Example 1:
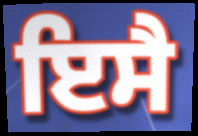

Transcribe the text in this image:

ਇਸੈ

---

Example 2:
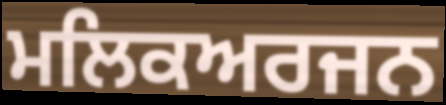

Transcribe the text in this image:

ਮਲਿਕਅਰਜਨ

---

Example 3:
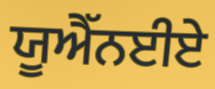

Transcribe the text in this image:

ਯੂਐੱਨਈਏ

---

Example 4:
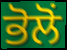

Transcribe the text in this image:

ਭੋਲੋਂ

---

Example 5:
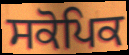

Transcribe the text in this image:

ਸਕੋਪਿਕ